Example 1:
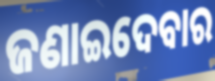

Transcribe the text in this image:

ଜଣାଇଦେବାର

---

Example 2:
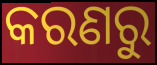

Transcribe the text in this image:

କରଣରୁ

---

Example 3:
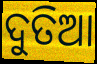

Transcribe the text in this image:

ଦୁତିଆ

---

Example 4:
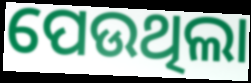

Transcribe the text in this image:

ପେଉଥିଲା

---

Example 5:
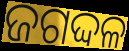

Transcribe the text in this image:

ଜଗଦ୍ଦଳ